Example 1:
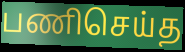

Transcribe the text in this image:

பணிசெய்த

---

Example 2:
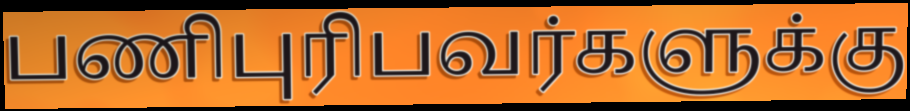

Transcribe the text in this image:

பணிபுரிபவர்களுக்கு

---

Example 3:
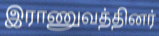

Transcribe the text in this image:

இராணுவத்தினர்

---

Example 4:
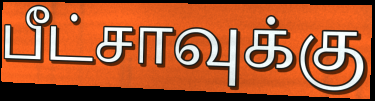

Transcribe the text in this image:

பீட்சாவுக்கு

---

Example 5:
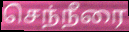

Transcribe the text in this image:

செந்நீரை